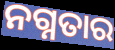
ନଗ୍ନତାର